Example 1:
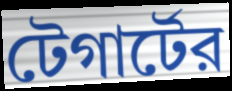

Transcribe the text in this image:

টেগার্টের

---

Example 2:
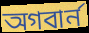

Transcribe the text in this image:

অগবার্ন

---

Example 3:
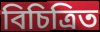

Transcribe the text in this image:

বিচিত্রিত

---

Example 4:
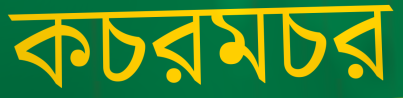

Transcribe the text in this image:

কচরমচর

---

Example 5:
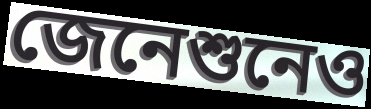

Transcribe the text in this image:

জেনেশুনেও